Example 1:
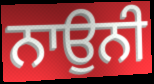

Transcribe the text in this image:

ਨਾਉਨੀ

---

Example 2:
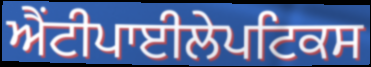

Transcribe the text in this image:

ਐਂਟੀਪਾਈਲੇਪਟਿਕਸ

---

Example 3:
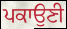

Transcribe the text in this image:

ਪਕਾਉਣੀ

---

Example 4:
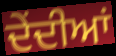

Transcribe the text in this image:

ਦੇਂਦੀਆਂ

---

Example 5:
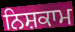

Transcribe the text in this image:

ਨਿਸ਼ਕਾਮ